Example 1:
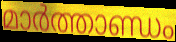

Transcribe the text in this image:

മാർത്താണ്ഡം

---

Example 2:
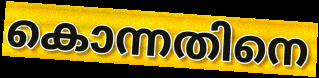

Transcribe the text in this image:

കൊന്നതിനെ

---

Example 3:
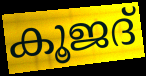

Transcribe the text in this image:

കൂജദ്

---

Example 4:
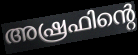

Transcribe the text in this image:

അഷ്രഫിന്റെ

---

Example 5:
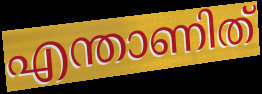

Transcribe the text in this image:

എന്താണിത്